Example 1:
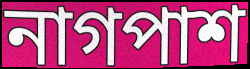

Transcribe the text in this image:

নাগপাশ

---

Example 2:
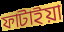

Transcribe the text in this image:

ফাটাইয়া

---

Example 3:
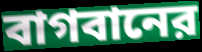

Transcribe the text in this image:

বাগবানের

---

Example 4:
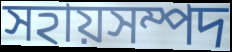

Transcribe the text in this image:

সহায়সম্পদ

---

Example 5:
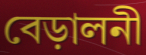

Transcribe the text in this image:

বেড়ালনী